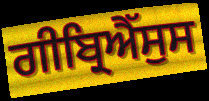
ਗੀਬ੍ਰਿਐੱਸੁਸ